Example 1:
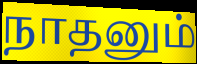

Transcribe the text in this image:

நாதனும்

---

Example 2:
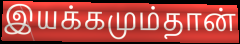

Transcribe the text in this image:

இயக்கமும்தான்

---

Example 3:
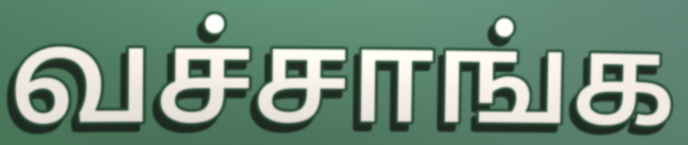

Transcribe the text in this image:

வச்சாங்க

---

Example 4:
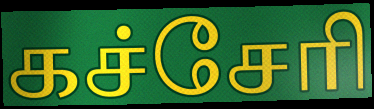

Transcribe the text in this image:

கச்சேரி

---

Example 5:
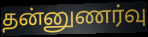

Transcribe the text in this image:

தன்னுணர்வு